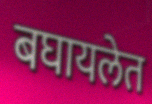
बघायलेत